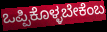
ಒಪ್ಪಿಕೊಳ್ಳಬೇಕೆಂಬ